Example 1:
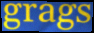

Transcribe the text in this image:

grags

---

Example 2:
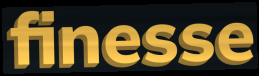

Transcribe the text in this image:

finesse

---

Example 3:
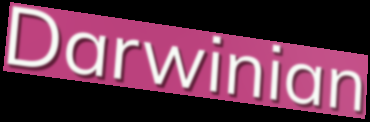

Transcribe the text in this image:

Darwinian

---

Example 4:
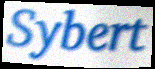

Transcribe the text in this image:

Sybert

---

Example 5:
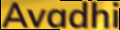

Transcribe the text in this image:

Avadhi